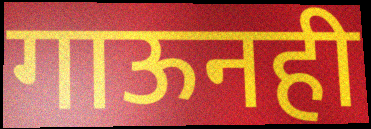
गाऊनही